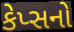
કેપ્સનો